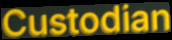
Custodian